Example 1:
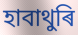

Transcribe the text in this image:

হাবাথুৰি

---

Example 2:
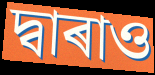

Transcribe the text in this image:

দ্বাৰাও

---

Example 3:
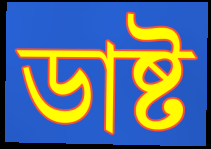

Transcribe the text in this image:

ডাষ্ট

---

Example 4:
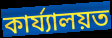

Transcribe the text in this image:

কাৰ্য্যালয়ত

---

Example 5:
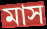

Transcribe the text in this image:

মাস